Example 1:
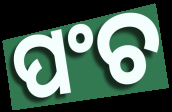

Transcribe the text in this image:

ପଂଚ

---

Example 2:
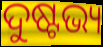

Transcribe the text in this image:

ଦୁଷ୍ଟଭ୍ୟ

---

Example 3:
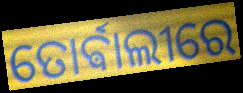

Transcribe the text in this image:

ତୋର୍ଵାଲୀରେ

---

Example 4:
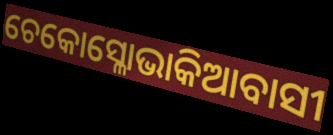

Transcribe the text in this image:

ଚେକୋସ୍ଳୋଭାକିଆବାସୀ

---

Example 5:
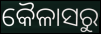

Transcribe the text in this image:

କୈଳାସରୁ